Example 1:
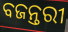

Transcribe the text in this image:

ବଜନ୍ତରୀ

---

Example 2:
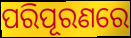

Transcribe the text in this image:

ପରିପୂରଣରେ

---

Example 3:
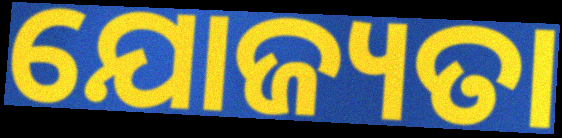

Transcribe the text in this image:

ଯୋଜ୍ୟତା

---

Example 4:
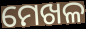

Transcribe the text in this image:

ମେଖଳ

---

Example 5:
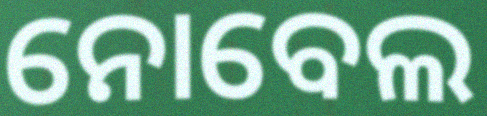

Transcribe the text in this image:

ନୋବେଲ